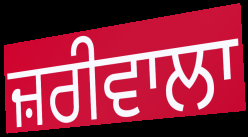
ਜ਼ਰੀਵਾਲਾ